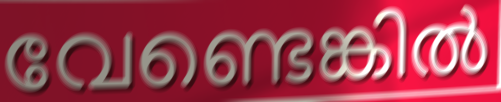
വേണ്ടെങ്കിൽ